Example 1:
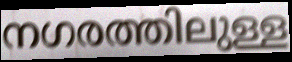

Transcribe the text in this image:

നഗരത്തിലുള്ള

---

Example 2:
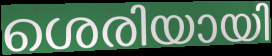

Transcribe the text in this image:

ശെരിയായി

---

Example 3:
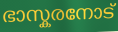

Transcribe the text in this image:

ഭാസ്കരനോട്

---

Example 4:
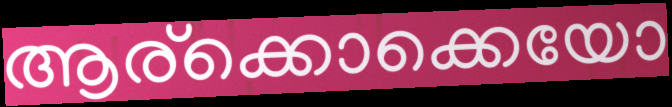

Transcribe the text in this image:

ആര്ക്കൊക്കെയോ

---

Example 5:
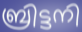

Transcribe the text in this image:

ബ്രിട്ടനി